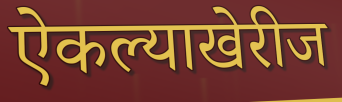
ऐकल्याखेरीज